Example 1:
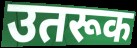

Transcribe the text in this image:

उतरूक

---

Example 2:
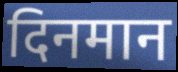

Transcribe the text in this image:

दिनमान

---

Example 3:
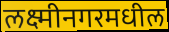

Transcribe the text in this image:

लक्ष्मीनगरमधील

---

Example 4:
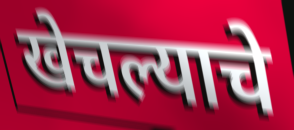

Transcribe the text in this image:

खेचल्याचे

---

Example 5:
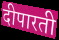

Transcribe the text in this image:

दीपारती